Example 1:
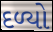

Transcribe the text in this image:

દળ્યો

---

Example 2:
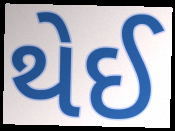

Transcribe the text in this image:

થેઈ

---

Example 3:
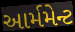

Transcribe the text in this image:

આર્મમેન્ટ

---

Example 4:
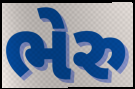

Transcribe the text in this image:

ભેરુ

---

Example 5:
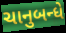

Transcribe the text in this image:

ચાનુબન્ધે